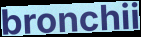
bronchii